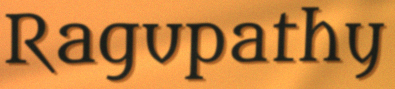
Ragupathy